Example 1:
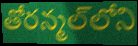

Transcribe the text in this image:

తోరన్మల్‌లోని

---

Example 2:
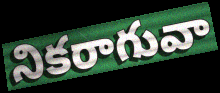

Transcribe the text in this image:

నికరాగువా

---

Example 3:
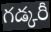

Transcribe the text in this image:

గడ్కరీ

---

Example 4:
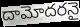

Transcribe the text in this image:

దామోదరనై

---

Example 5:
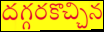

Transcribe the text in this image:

దగ్గరకొచ్చిన